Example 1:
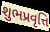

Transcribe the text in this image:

શુભપ્રવૃત્તિ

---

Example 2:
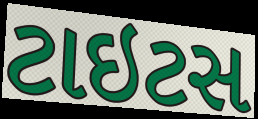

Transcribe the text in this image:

ટાઇટસ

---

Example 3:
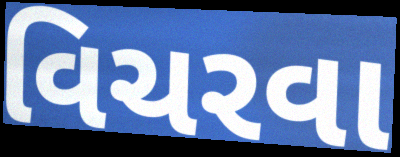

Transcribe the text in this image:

વિચરવા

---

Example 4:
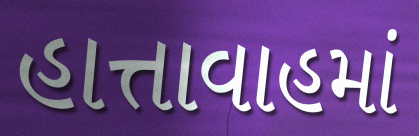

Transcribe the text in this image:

હાત્તાવાહમાં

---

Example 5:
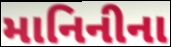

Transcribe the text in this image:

માનિનીના